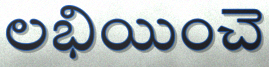
లభియించె